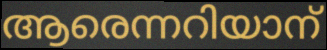
ആരെന്നറിയാന്